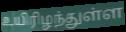
உயிரிழந்துள்ள